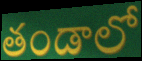
తండాలో